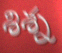
శిశ్న